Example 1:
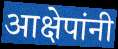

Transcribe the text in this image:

आक्षेपांनी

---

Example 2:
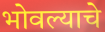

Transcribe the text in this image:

भोवल्याचे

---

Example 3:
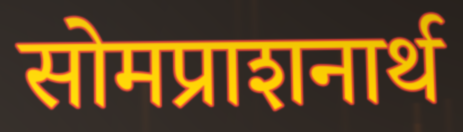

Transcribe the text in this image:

सोमप्राशनार्थ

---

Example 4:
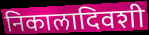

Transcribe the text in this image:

निकालादिवशी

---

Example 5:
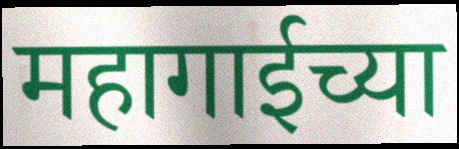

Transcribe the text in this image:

महागाईच्या